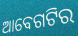
ଆବେଗଟିର